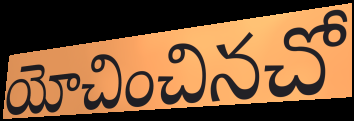
యోచించినచో